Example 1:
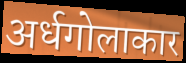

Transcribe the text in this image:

अर्धगोलाकार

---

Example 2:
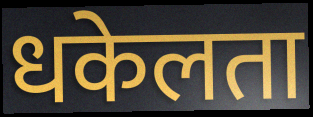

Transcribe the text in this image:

धकेलता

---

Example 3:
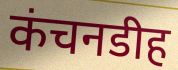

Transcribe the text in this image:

कंचनडीह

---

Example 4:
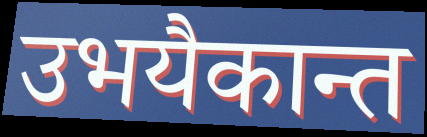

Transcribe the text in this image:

उभयैकान्त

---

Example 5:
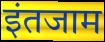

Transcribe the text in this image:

इंतजाम